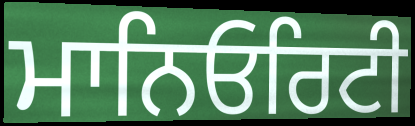
ਮਾਨਿਓਰਿਟੀ